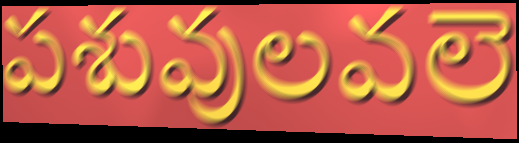
పశువులవలె